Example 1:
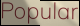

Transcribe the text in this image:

Popular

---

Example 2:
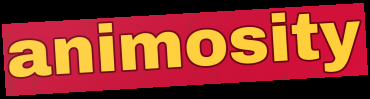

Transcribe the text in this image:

animosity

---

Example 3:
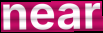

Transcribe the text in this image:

near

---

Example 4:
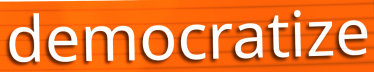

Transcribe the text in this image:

democratize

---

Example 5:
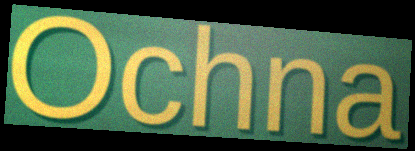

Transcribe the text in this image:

Ochna